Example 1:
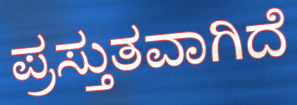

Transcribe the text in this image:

ಪ್ರಸ್ತುತವಾಗಿದೆ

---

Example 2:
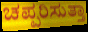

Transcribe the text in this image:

ಚಪ್ಪರಿಸುತ್ತಾ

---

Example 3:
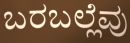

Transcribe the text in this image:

ಬರಬಲ್ಲೆವು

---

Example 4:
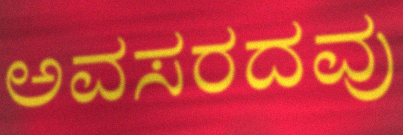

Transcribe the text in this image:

ಅವಸರದವು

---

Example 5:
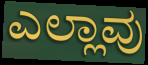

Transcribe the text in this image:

ಎಲ್ಲಾವು